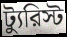
ট্যুরিস্ট